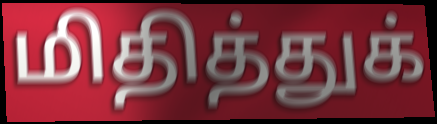
மிதித்துக்